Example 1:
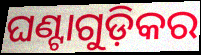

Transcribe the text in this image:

ଘଣ୍ଟାଗୁଡ଼ିକର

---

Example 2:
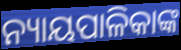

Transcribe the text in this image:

ନ୍ୟାୟପାଳିକାଙ୍କ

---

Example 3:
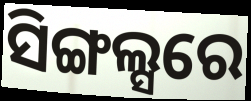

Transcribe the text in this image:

ସିଙ୍ଗଲ୍ସରେ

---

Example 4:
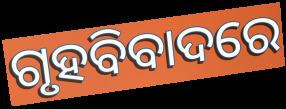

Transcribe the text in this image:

ଗୃହବିବାଦରେ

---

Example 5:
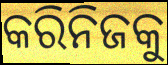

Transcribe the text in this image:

କରିନିଜକୁ